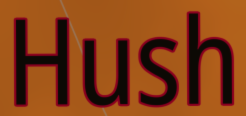
Hush